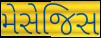
મેસેજિસ